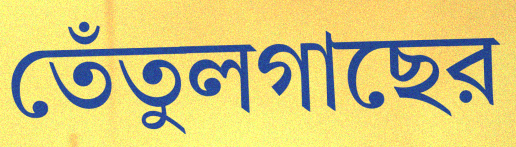
তেঁতুলগাছের